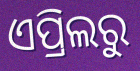
ଏପ୍ରିଲରୁ